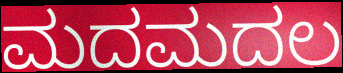
ಮದಮದಲ